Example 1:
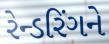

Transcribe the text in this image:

રેન્ડરિંગને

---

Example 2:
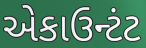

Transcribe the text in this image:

એકાઉન્ટંટ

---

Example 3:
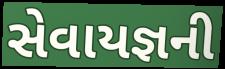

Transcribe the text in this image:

સેવાયજ્ઞની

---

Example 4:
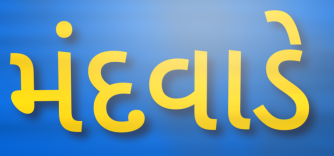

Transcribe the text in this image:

મંદવાડે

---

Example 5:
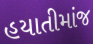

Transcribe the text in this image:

હયાતીમાંજ